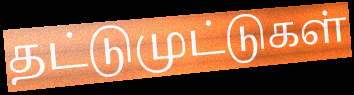
தட்டுமுட்டுகள்